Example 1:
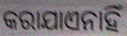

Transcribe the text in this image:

କରାଯାଏନାହିଁ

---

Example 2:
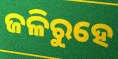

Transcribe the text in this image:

ଜଳିରୁହେ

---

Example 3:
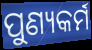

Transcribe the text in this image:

ପୁଣ୍ୟକର୍ମ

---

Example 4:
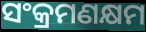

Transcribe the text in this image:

ସଂକ୍ରମଣକ୍ଷମ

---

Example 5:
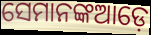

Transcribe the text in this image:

ସେମାନଙ୍କଆଡ଼େ